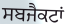
ਸਬਜੈਕਟਾਂ